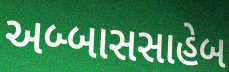
અબ્બાસસાહેબ